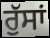
ਰੁੱਸਾਂ